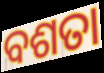
ବଶତା